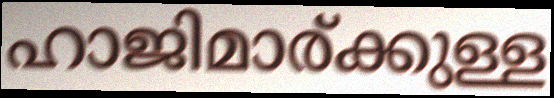
ഹാജിമാര്ക്കുള്ള